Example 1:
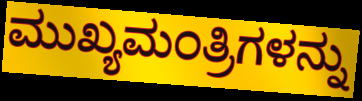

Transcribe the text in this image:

ಮುಖ್ಯಮಂತ್ರಿಗಳನ್ನು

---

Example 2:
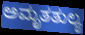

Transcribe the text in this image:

ಅಮೃತತುಲ್ಯ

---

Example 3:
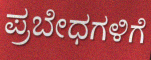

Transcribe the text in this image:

ಪ್ರಬೇಧಗಳಿಗೆ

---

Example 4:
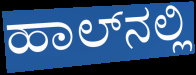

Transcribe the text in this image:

ಹಾಲ್‌ನಲ್ಲಿ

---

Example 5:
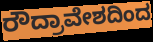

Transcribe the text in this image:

ರೌದ್ರಾವೇಶದಿಂದ